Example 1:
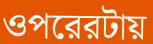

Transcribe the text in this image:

ওপরেরটায়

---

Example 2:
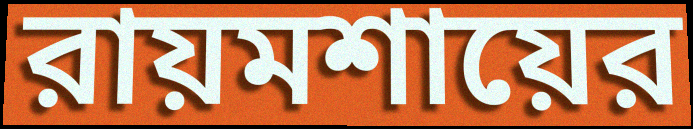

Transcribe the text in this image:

রায়মশায়ের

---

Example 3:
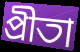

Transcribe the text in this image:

প্রীতা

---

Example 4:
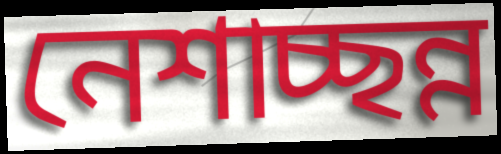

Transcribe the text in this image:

নেশাচ্ছন্ন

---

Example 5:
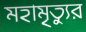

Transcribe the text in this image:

মহামৃত্যুর